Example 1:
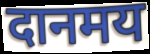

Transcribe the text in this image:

दानमय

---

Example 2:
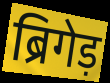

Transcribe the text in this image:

ब्रिगेड़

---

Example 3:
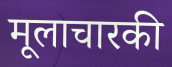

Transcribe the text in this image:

मूलाचारकी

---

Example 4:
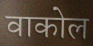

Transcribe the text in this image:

वाकोल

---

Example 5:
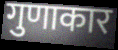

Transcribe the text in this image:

गुणाकार